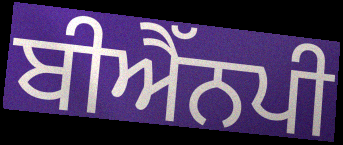
ਬੀਐੱਨਪੀ